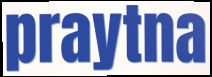
praytna